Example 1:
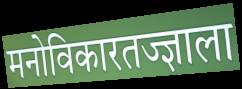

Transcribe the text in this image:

मनोविकारतज्ज्ञाला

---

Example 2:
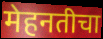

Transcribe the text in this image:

मेहनतीचा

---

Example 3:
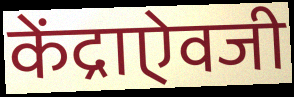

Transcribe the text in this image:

केंद्राऐवजी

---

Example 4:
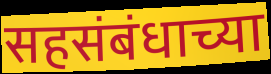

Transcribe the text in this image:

सहसंबंधाच्या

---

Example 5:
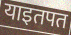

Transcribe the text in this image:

याइतपत